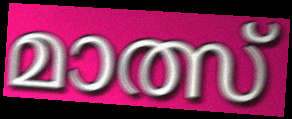
മാത്സ്